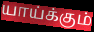
யாய்க்கும்